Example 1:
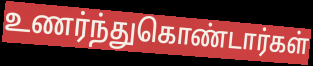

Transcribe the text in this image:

உணர்ந்துகொண்டார்கள்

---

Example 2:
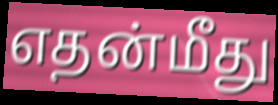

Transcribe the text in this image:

எதன்மீது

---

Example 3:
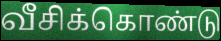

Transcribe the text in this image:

வீசிக்கொண்டு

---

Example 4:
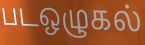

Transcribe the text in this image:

படஒழுகல்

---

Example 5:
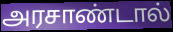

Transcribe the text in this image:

அரசாண்டால்